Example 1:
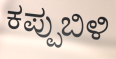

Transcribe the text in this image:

ಕಪ್ಪುಬಿಳಿ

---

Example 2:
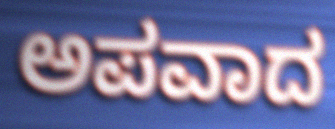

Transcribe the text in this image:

ಅಪವಾದ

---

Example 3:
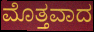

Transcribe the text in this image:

ಮೊತ್ತವಾದ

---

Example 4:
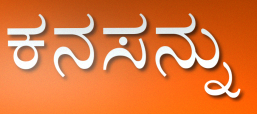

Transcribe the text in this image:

ಕನಸನ್ನು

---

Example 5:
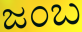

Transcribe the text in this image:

ಜಂಬ